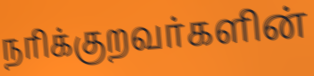
நரிக்குறவர்களின்